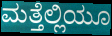
ಮತ್ತೆಲ್ಲಿಯೂ